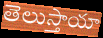
తెలుస్తాయా